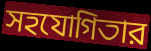
সহযোগিতার